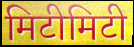
मिटीमिटी